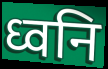
ध्‍वनि